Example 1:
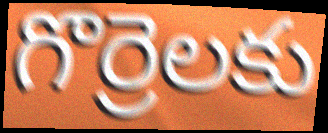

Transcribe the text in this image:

గొర్రెలకు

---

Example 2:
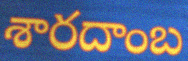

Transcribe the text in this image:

శారదాంబ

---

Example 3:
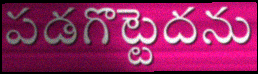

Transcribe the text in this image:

పడగొట్టెదను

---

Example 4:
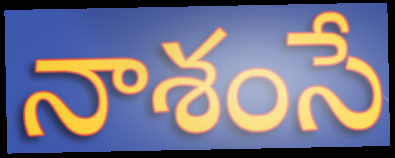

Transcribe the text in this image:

నాశంసే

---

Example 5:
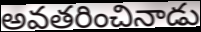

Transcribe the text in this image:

అవతరించినాడు